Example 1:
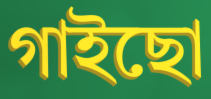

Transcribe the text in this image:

গাইছো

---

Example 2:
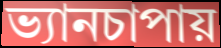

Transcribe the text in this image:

ভ্যানচাপায়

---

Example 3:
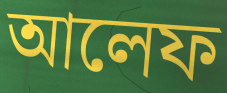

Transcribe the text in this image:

আলেফ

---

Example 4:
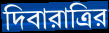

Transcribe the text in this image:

দিবারাত্রির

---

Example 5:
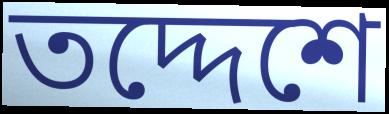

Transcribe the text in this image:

তদ্দেশে